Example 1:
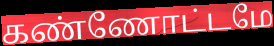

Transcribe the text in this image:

கண்ணோட்டமே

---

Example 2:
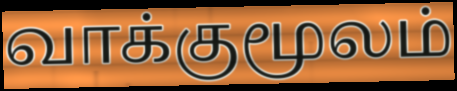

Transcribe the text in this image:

வாக்குமூலம்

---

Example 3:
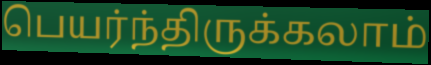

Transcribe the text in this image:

பெயர்ந்திருக்கலாம்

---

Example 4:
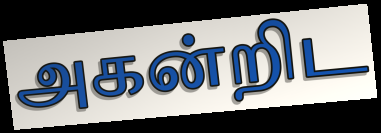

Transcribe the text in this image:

அகன்றிட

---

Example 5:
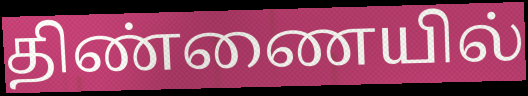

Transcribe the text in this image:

திண்ணையில்